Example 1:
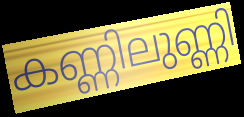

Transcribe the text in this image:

കണ്ണിലുണ്ണി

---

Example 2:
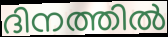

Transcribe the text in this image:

ദിനത്തിൽ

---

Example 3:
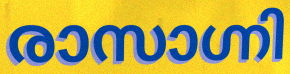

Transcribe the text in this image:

രാസാഗ്നി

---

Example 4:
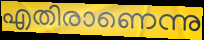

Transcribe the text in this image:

എതിരാണെന്നു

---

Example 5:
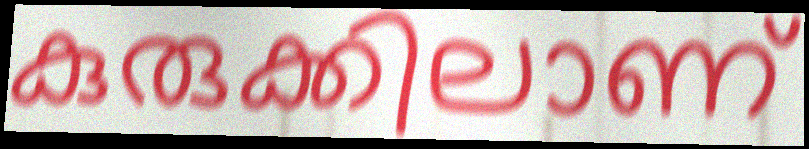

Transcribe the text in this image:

കുരുക്കിലാണ്